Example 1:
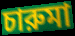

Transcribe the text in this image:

চারুমা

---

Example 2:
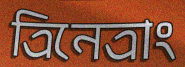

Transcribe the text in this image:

ত্রিনেত্রাং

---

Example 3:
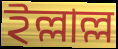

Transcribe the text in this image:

ইল্লাল্ল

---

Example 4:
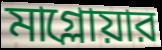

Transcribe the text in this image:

মাগ্লোয়ার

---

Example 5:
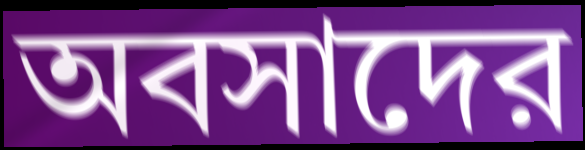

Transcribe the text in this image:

অবসাদের